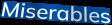
Miserables